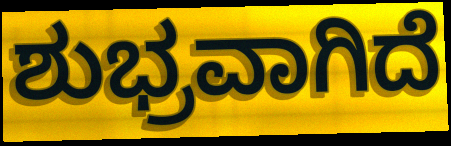
ಶುಭ್ರವಾಗಿದೆ